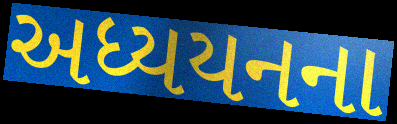
અધ્યયનના